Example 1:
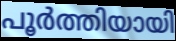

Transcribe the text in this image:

പൂർത്തിയായി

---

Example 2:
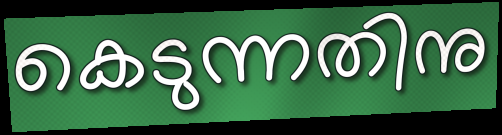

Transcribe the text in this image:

കെടുന്നതിനു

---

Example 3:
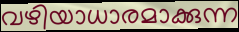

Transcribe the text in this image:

വഴിയാധാരമാക്കുന്ന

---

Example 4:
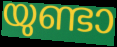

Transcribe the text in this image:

യുണ്ടാ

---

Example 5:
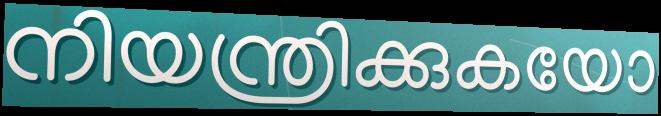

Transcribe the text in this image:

നിയന്ത്രിക്കുകയോ